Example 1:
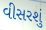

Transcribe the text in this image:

વીસરશું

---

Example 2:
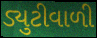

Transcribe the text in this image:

ડ્યુટીવાળી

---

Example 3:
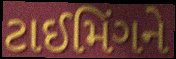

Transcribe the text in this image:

ટાઈમિંગને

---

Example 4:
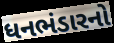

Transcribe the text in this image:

ધનભંડારનો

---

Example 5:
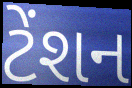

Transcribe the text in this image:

ટેંશન